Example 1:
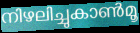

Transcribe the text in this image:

നിഴലിച്ചുകാൺമൂ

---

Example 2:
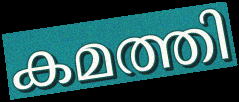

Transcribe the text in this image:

കമത്തി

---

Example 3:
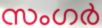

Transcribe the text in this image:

സംഗർ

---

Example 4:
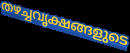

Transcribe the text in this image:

തഴച്ചവൃക്ഷങ്ങളുടെ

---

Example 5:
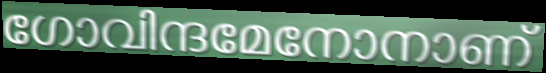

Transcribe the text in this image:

ഗോവിന്ദമേനോനാണ്